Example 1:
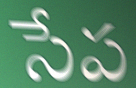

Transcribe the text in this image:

సేప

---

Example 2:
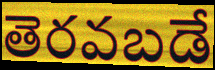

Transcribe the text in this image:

తెరవబడే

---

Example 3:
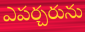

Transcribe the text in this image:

ఎపర్చరును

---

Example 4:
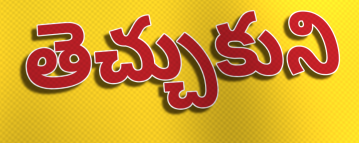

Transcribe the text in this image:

తెచ్చుకుని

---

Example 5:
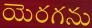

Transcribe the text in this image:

యెరగను